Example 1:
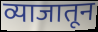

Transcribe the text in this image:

व्याजातून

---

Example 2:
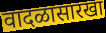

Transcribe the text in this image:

वादळासारखा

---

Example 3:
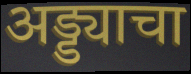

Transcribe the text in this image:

अड्ड्याचा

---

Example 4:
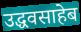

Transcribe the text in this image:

उद्धवसाहेब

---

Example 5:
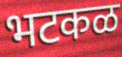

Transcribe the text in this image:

भटकळ